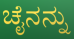
ಚೈನನ್ನು